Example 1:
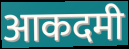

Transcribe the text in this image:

आकदमी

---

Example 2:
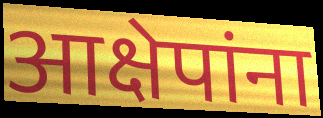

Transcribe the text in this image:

आक्षेपांना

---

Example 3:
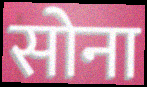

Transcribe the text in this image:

सोना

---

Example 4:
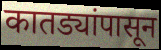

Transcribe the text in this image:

कातड्यांपासून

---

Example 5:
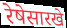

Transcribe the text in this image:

रेषेसारखे